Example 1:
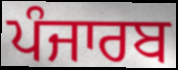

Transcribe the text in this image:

ਪੰਜਾਰਬ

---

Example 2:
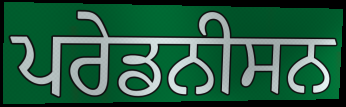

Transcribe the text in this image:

ਪਰੇਡਨੀਸਨ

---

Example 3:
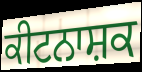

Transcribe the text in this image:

ਕੀਟਨਾਸ਼ਕ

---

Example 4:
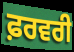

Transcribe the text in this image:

ਫ਼ਰਵਰੀ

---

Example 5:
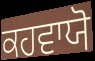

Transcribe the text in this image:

ਕਹਵਾਯੋ